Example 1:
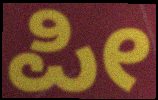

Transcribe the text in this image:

ಪೀ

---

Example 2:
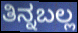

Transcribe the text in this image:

ತಿನ್ನಬಲ್ಲ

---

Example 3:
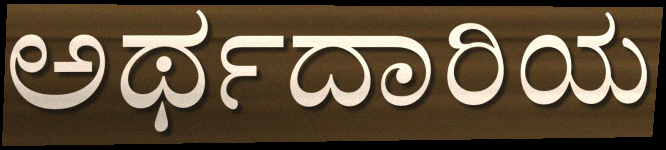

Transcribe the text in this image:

ಅರ್ಥದಾರಿಯ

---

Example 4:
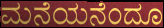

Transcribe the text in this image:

ಮನೆಯನೆಂದೂ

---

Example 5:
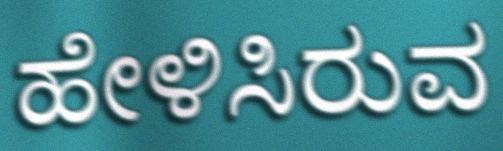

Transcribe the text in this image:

ಹೇಳಿಸಿರುವ